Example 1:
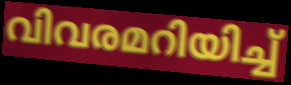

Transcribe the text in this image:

വിവരമറിയിച്ച്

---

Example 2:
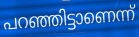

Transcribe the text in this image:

പറഞ്ഞിട്ടാണെന്ന്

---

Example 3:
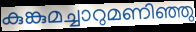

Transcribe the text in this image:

കുങ്കുമച്ചാറുമണിഞ്ഞു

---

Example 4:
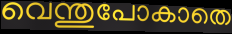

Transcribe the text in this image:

വെന്തുപോകാതെ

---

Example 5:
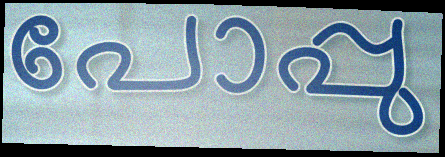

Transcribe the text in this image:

പോപ്പു